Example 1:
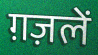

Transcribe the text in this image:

ग़ज़लें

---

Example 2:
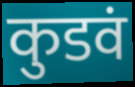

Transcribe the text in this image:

कुडवं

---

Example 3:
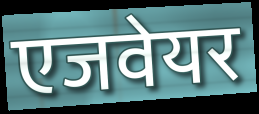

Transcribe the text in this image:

एजवेयर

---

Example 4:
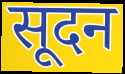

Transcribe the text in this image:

सूदन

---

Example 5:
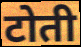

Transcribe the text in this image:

टोती